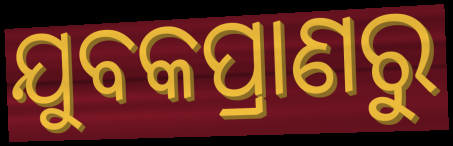
ଯୁବକପ୍ରାଣରୁ